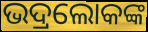
ଭଦ୍ରଲୋକଙ୍କ